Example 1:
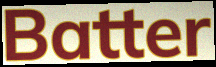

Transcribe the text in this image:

Batter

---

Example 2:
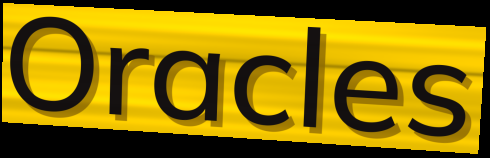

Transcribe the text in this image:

Oracles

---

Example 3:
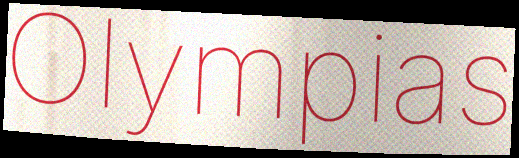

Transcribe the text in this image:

Olympias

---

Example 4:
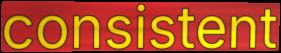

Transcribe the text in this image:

consistent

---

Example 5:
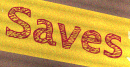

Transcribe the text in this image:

Saves